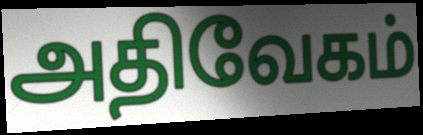
அதிவேகம்